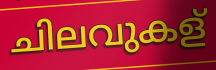
ചിലവുകള്